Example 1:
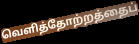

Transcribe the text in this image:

வெளித்தோற்றத்தைப்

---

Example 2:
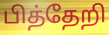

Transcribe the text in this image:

பித்தேறி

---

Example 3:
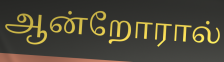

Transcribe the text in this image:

ஆன்றோரால்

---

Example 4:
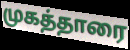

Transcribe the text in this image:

முகத்தாரை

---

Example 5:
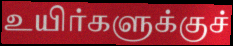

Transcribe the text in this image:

உயிர்களுக்குச்